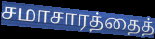
சமாசாரத்தைத்